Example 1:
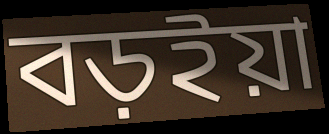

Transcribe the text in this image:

বড়ইয়া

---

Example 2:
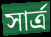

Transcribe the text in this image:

সার্ত্র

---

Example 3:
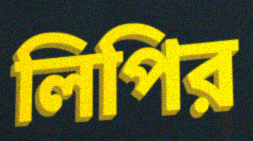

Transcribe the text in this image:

লিপির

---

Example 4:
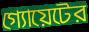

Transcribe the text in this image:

গ্যোয়েটের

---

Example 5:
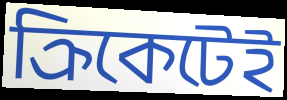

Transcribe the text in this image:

ক্রিকেটেই